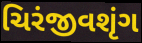
ચિરંજીવશૃંગ